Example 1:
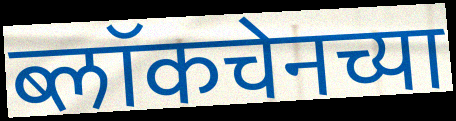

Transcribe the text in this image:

ब्लॉकचेनच्या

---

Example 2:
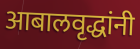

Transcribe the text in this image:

आबालवृद्धांनी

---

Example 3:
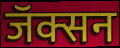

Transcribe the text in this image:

जॅक्सन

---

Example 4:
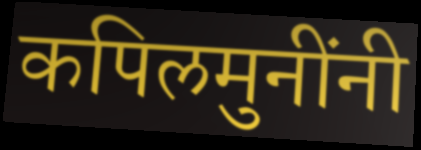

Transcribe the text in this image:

कपिलमुनींनी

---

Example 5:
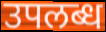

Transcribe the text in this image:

उपलब्ध